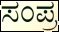
ಸಂಪ್ರ